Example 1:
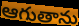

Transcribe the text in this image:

ఆగుతాను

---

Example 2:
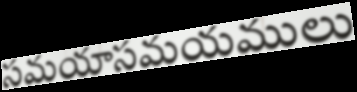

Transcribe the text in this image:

సమయాసమయములు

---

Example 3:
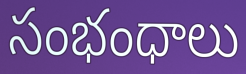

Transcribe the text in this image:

సంభంధాలు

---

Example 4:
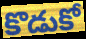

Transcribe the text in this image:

కొడుకో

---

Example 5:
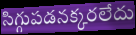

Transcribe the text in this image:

సిగ్గుపడనక్కరలేదు